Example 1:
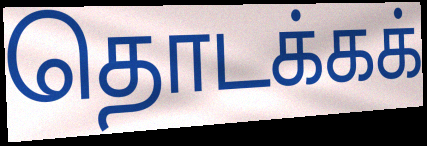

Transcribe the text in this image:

தொடக்கக்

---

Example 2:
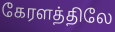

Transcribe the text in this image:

கேரளத்திலே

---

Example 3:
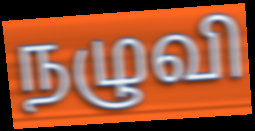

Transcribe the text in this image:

நழுவி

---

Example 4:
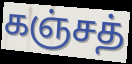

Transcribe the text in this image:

கஞ்சத்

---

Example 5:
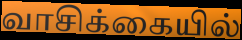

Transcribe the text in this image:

வாசிக்கையில்